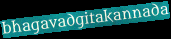
bhagavadgitakannada